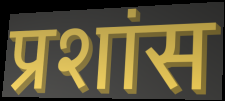
प्रशांस